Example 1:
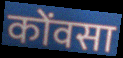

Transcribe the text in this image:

कोंवसा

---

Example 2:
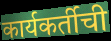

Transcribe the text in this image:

कार्यकर्तीची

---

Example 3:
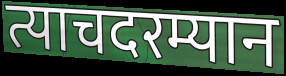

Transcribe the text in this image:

त्याचदरम्यान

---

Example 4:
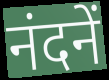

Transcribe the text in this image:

नंदनें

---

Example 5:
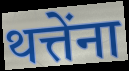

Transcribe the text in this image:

थत्तेंना